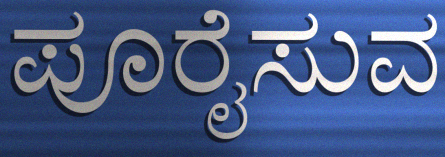
ಪೂರೈಸುವ